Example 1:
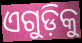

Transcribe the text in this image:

ଏଗୁଡ଼ିକୁ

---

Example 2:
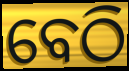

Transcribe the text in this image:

ବେଠି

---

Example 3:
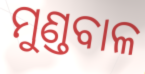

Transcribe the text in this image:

ମୁଣ୍ଡବାଳ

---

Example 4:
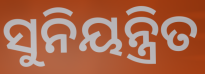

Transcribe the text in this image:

ସୁନିୟନ୍ତ୍ରିତ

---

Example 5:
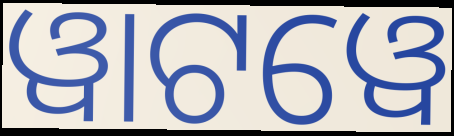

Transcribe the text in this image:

ୱାଟୱେ